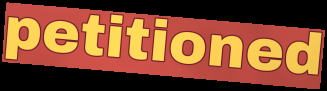
petitioned